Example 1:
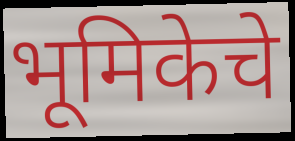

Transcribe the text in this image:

भूमिकेचे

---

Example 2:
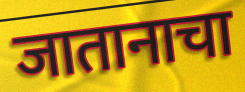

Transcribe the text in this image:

जातानाचा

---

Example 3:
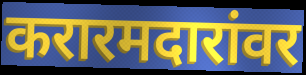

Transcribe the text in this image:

करारमदारांवर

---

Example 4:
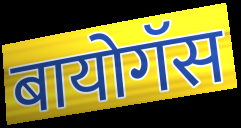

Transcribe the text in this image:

बायोगॅस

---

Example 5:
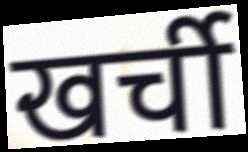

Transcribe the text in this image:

खर्ची